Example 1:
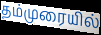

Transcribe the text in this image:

தம்முரையில்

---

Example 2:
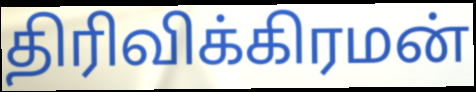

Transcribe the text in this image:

திரிவிக்கிரமன்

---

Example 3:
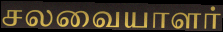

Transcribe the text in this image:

சலவையாளர்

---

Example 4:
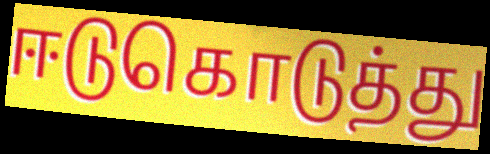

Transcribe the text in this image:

ஈடுகொடுத்து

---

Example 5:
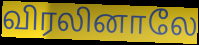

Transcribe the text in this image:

விரலினாலே